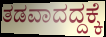
ತಡವಾದದ್ದಕ್ಕೆ